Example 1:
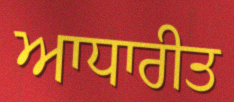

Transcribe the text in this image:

ਆਧਾਰੀਤ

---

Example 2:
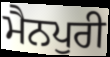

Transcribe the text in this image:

ਮੈਨਪੁਰੀ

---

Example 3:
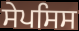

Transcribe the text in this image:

ਸੇਪਸਿਸ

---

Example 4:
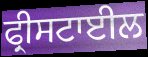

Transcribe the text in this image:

ਫ੍ਰੀਸਟਾਈਲ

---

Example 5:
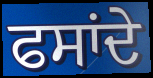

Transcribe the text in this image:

ਫਸਾਂਦੇ